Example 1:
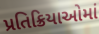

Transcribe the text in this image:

પ્રતિક્રિયાઓમાં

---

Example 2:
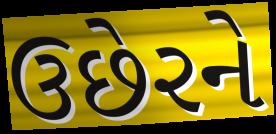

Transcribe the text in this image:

ઉછેરને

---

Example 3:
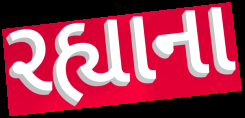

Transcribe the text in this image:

રહ્યાના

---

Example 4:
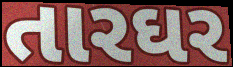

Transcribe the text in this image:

તારઘર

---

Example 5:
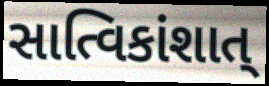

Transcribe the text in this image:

સાત્વિકાંશાત્